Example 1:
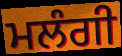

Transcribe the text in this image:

ਮਲੰਗੀ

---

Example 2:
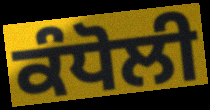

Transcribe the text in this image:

ਕੰਧੋਲੀ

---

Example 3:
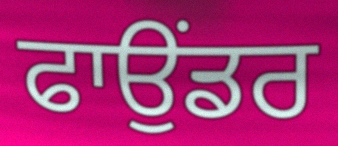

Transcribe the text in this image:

ਫਾਉਂਡਰ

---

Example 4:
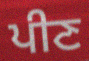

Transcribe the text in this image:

ਪੀਣ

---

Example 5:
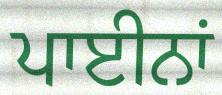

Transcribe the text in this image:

ਪਾਈਨਾਂ